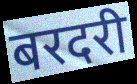
बरदरी